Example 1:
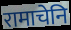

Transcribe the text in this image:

रामाचेनि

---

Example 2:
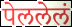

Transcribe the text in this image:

पेललेलं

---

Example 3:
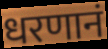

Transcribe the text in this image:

धरणानं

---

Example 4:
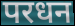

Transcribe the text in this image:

परधन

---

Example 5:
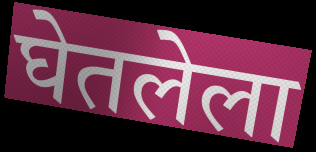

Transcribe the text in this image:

घेतलेला